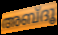
അബ്ദൂ